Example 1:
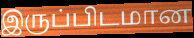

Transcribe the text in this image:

இருப்பிடமான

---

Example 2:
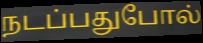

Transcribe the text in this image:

நடப்பதுபோல்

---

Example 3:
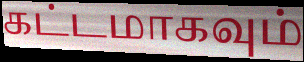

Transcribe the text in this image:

கட்டமாகவும்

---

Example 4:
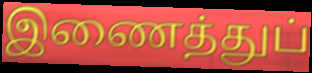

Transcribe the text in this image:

இணைத்துப்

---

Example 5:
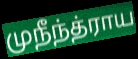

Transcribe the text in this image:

முநீந்த்ராய